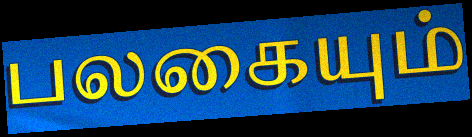
பலகையும்